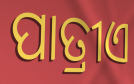
ପାତ୍ରୀଏ